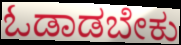
ಓಡಾಡಬೇಕು